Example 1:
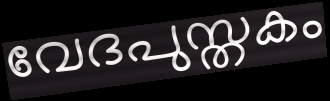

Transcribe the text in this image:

വേദപുസ്തകം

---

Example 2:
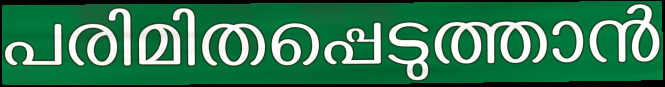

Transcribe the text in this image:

പരിമിതപ്പെടുത്താൻ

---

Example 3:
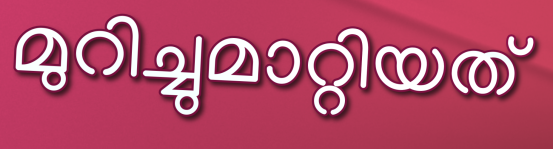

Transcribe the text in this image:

മുറിച്ചുമാറ്റിയത്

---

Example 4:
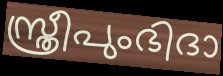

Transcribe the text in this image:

സ്ത്രീപുംഭിദാ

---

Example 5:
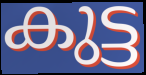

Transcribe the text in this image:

കുട്ട